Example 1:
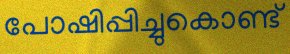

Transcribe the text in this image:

പോഷിപ്പിച്ചുകൊണ്ട്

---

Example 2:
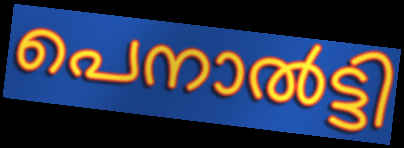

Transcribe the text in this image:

പെനാൽട്ടി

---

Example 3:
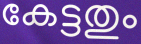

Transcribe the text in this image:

കേട്ടതും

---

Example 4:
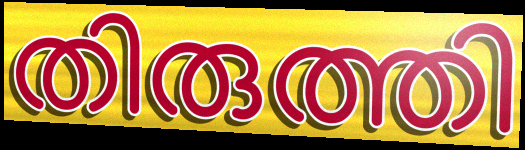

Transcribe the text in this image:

തിരുത്തി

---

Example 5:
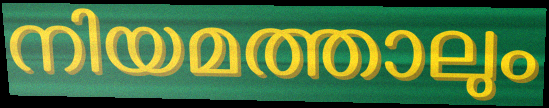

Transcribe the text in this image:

നിയമത്താലും